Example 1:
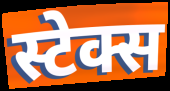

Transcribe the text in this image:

स्टेक्स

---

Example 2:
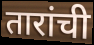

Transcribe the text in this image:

तारांची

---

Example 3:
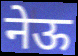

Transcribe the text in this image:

नेऊ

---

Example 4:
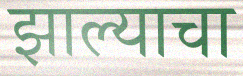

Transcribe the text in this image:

झाल्‍याचा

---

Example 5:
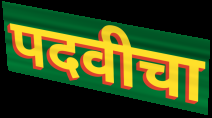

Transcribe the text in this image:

पदवीचा